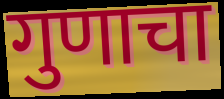
गुणाचा